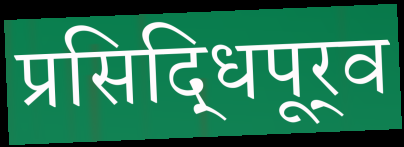
प्रसिद्धिपूर्व